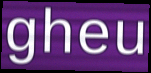
gheu